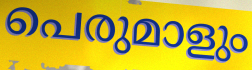
പെരുമാളും